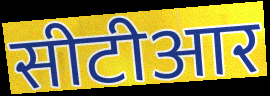
सीटीआर